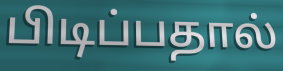
பிடிப்பதால்